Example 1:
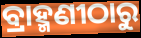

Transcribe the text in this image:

ବ୍ରାହ୍ମଣୀଠାରୁ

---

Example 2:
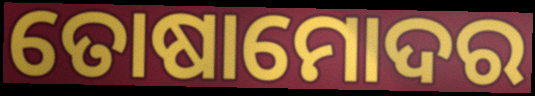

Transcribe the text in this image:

ତୋଷାମୋଦର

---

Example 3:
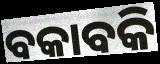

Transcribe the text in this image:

ବକାବକି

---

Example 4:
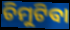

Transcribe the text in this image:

ଚିମୁଟିବା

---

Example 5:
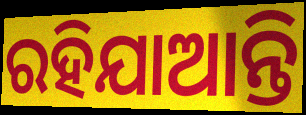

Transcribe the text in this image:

ରହିଯାଆନ୍ତି